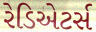
રેડિએટર્સ